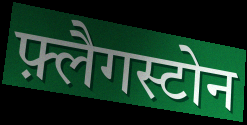
फ़्लैगस्टोन